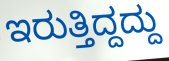
ಇರುತ್ತಿದ್ದದ್ದು